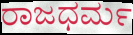
ರಾಜಧರ್ಮ